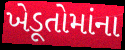
ખેડૂતોમાંના